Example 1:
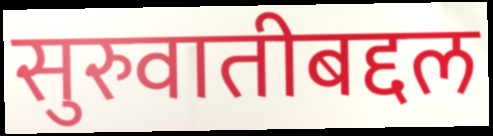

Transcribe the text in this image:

सुरुवातीबद्दल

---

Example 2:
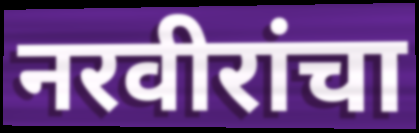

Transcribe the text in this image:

नरवीरांचा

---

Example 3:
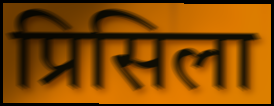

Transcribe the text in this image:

प्रिसिला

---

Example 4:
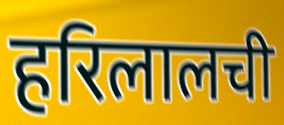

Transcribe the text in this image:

हरिलालची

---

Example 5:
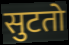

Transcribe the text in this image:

सुटतो